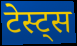
टेस्ट्स